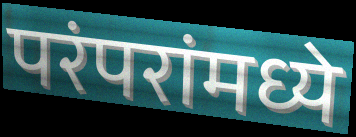
परंपरांमध्ये